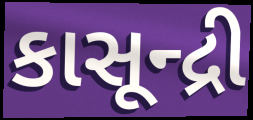
કાસૂન્દ્રી